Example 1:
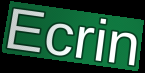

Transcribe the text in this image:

Ecrin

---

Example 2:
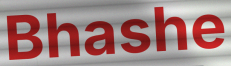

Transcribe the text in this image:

Bhashe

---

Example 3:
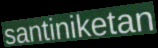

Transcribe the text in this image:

santiniketan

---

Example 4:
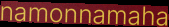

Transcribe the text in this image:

namonnamaha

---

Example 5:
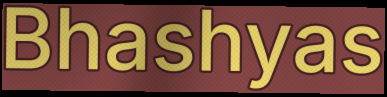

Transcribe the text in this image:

Bhashyas